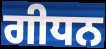
ਗੀਧਨ